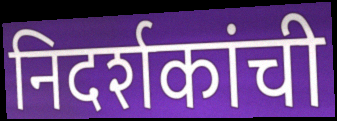
निदर्शकांची